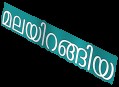
മലയിറങ്ങിയ